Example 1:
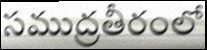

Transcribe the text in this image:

సముద్రతీరంలో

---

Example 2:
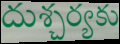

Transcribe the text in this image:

దుశ్చర్యకు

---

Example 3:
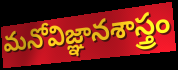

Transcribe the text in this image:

మనోవిజ్ఞానశాస్త్రం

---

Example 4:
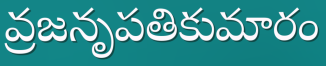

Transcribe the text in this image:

వ్రజనృపతికుమారం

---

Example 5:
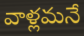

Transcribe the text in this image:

వాళ్లమనే